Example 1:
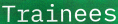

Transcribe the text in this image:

Trainees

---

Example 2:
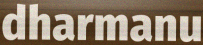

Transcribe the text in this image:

dharmanu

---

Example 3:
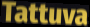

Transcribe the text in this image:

Tattuva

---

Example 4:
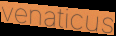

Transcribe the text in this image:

venaticus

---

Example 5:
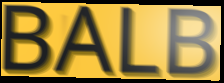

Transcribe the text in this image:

BALB